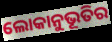
ଲୋକାନୁଭୂତିର